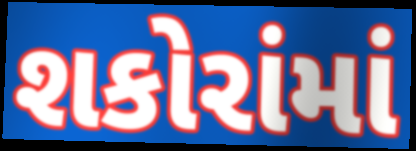
શકોરાંમાં